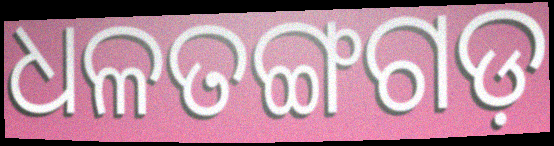
ଧଳତଙ୍ଗଗଡ଼